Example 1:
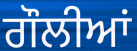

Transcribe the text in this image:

ਗੌਲੀਆਂ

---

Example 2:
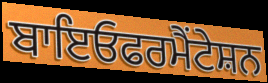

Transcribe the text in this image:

ਬਾਇਓਫਰਮੈਂਟੇਸ਼ਨ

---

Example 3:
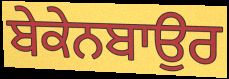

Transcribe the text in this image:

ਬੇਕੇਨਬਾਉਰ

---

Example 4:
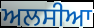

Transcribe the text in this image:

ਅਲਸੀਆ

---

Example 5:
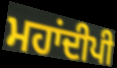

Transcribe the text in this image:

ਮਹਾਂਦੀਪੀ